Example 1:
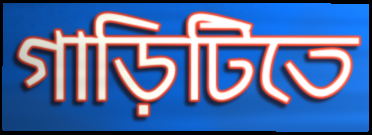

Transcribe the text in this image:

গাড়িটিতে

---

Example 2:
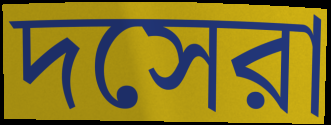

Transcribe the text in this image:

দসেরা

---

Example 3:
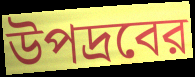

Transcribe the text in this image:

উপদ্রবের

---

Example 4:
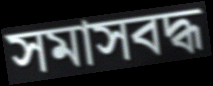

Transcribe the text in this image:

সমাসবদ্ধ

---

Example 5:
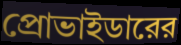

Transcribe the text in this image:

প্রোভাইডারের